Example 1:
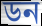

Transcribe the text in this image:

ডন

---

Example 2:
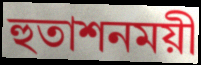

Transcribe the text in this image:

হুতাশনময়ী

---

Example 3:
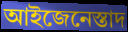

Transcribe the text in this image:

আইজেনেস্তাদ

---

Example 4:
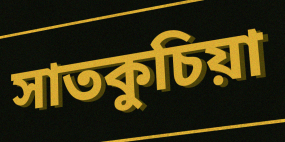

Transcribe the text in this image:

সাতকুচিয়া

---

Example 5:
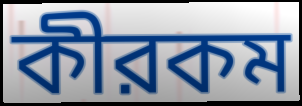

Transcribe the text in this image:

কীরকম